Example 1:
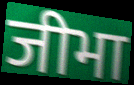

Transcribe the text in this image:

जीभा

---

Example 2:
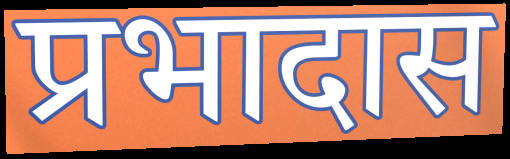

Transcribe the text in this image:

प्रभादास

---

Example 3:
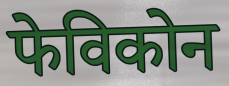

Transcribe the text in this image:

फेविकोन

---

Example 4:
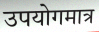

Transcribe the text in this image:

उपयोगमात्र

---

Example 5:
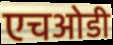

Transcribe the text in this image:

एचओडी